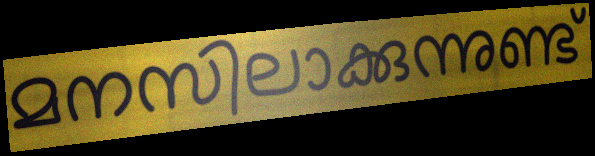
മനസിലാക്കുന്നുണ്ട്